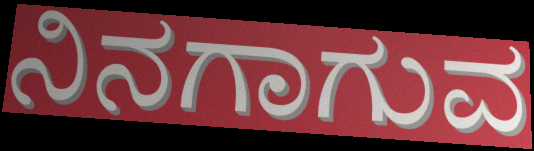
ನಿನಗಾಗುವ